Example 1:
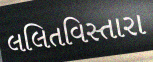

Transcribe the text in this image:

લલિતવિસ્તારા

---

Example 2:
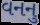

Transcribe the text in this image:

વનનુ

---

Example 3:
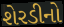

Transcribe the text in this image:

શેરડીનો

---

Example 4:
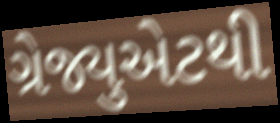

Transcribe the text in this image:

ગ્રેજ્યુએટથી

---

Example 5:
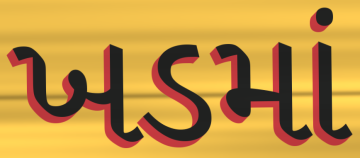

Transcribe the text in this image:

ખડમાં